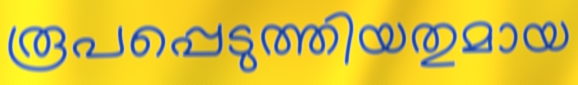
രൂപപ്പെടുത്തിയതുമായ